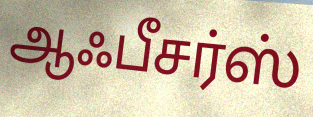
ஆஃபீசர்ஸ்